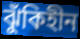
ঝুঁকিহীন